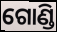
ଗୋଣ୍ଡି